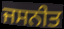
ਜਸਨੀਤ